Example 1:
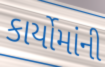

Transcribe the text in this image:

કાર્યોમાંની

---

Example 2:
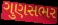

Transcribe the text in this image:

ગુણસભર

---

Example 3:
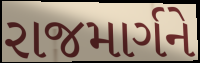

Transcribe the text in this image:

રાજમાર્ગને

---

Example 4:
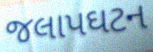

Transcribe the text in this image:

જલાપઘટન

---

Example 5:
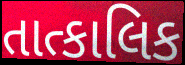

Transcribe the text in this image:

તાત્કાલિક